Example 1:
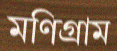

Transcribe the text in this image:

মণিগ্রাম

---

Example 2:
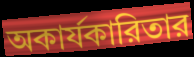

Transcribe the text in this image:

অকার্যকারিতার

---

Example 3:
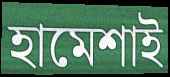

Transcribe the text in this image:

হামেশাই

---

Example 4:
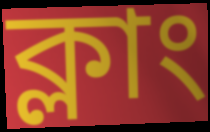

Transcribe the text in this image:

ক্লাং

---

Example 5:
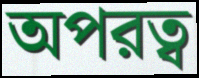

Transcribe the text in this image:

অপরত্ব